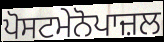
ਪੋਸਟਮੇਨੋਪਾਜ਼ਲ